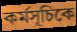
কর্মসূচিকে